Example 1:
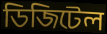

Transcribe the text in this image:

ডিজিটেল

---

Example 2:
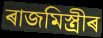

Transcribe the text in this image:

ৰাজমিস্ত্ৰীৰ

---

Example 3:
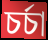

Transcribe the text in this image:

চৰ্চা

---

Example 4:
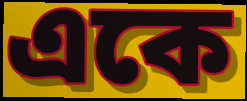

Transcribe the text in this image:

একে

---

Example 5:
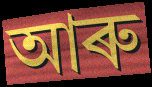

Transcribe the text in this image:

আৰু